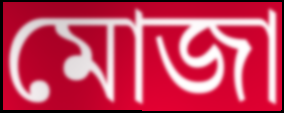
মোজা